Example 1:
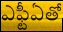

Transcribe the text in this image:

ఎఫ్టీఏతో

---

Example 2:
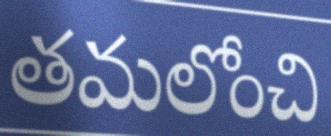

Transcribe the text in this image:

తమలోంచి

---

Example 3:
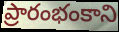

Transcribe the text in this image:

ప్రారంభంకాని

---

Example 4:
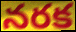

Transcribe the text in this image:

నరక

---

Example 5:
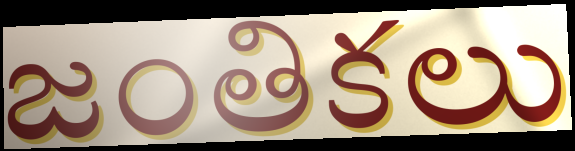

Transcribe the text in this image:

జంతికలు